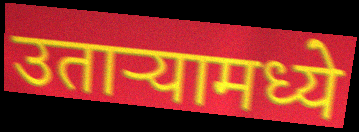
उताऱ्यामध्ये